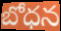
బోధన